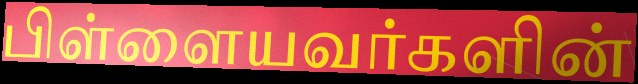
பிள்ளையவர்களின்